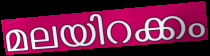
മലയിറക്കം